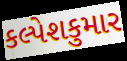
કલ્પેશકુમાર